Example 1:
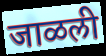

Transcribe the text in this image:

जाळली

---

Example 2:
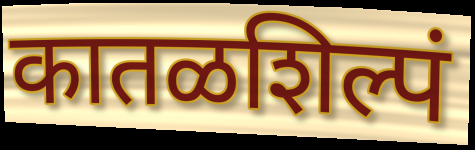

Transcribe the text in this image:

कातळशिल्पं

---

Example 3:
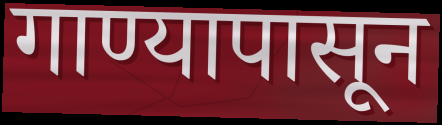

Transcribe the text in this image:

गाण्यापासून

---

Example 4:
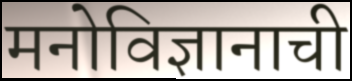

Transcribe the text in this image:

मनोविज्ञानाची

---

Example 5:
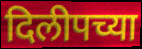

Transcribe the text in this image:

दिलीपच्या